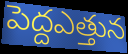
పెద్దఎత్తున